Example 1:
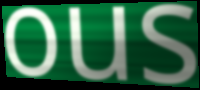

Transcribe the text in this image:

ous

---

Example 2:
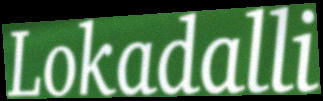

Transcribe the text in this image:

Lokadalli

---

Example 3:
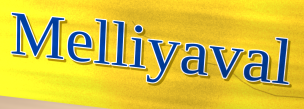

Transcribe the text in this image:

Melliyaval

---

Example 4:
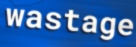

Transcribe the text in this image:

wastage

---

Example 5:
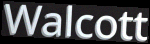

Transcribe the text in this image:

Walcott